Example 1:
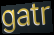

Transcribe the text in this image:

gatr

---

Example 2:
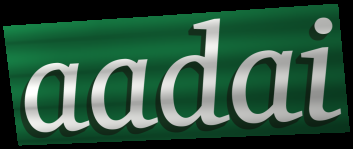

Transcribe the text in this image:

aadai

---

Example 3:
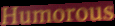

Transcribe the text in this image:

Humorous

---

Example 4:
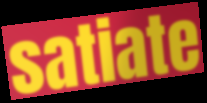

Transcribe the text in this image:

satiate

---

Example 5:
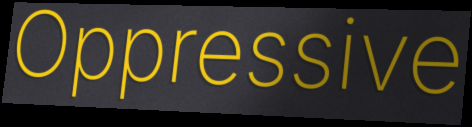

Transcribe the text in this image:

Oppressive